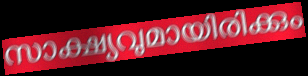
സാക്ഷ്യവുമായിരിക്കും